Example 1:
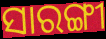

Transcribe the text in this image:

ସାରଙ୍ଗୀ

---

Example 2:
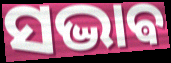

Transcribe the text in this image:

ସଦ୍ଭାଵ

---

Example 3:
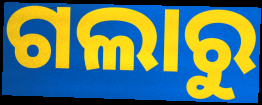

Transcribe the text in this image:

ଗଲାରୁ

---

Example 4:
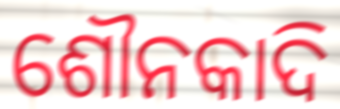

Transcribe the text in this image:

ଶୌନକାଦି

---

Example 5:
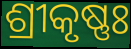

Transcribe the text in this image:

ଶ୍ରୀକୃଷ୍ଣଃ